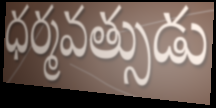
ధర్మవత్సుడు